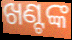
ଖଣ୍ଟଙ୍କ